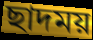
ছাদময়